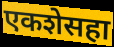
एकशेसहा